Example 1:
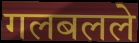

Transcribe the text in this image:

गलबलले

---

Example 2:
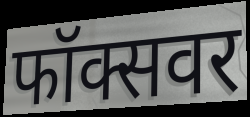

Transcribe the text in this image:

फॉक्सवर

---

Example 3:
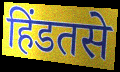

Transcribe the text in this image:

हिंडतसे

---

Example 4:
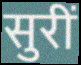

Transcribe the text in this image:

सुरीं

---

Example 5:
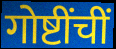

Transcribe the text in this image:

गोष्टींचीं